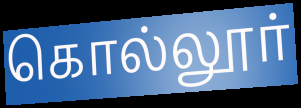
கொல்லூர்